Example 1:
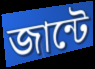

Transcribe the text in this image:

জান্টে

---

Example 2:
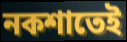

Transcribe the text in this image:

নকশাতেই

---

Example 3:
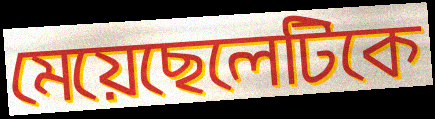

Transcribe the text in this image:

মেয়েছেলেটিকে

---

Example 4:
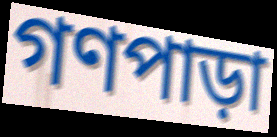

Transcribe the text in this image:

গণপাড়া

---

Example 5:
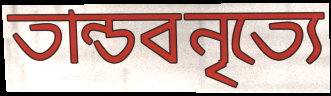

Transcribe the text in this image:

তান্ডবনৃত্যে